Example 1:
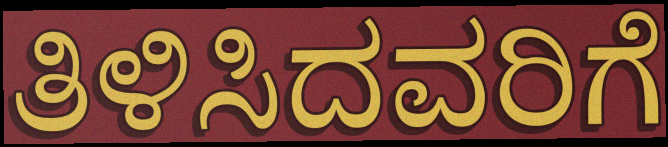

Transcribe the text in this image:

ತಿಳಿಸಿದವರಿಗೆ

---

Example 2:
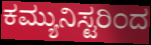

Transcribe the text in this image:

ಕಮ್ಯುನಿಸ್ಟರಿಂದ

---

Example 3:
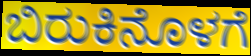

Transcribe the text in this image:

ಬಿರುಕಿನೊಳಗೆ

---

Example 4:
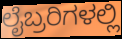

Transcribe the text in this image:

ಲೈಬ್ರರಿಗಳಲ್ಲಿ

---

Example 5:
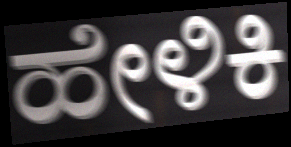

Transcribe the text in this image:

ಹೇಳಿಕಿ